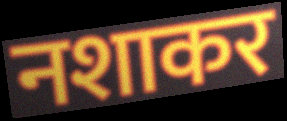
नशाकर